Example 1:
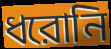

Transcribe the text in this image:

ধরোনি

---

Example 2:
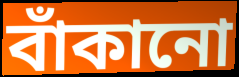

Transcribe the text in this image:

বাঁকানো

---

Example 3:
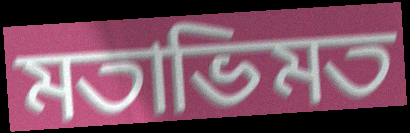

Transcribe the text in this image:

মতাভিমত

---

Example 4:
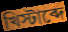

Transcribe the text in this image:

খিস্টাব্দে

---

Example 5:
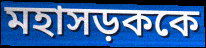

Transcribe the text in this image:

মহাসড়ককে